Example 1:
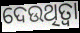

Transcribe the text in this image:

ଦେଉଥିତ୍ବା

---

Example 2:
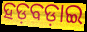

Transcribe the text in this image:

ହଡ଼ବଡ଼ାଇ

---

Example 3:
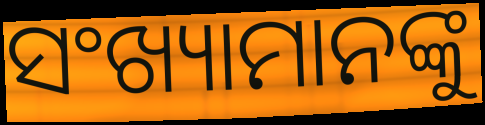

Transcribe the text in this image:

ସଂଖ୍ୟାମାନଙ୍କୁ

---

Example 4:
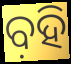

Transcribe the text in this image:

ବ଼ହି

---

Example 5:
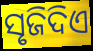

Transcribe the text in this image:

ସୃଜିଦିଏ